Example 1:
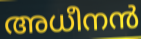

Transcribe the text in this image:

അധീനൻ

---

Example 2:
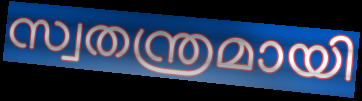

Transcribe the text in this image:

സ്വതന്ത്രമായി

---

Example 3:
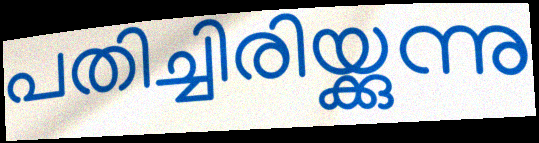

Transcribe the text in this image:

പതിച്ചിരിയ്ക്കുന്നു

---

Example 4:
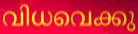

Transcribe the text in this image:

വിധവെക്കു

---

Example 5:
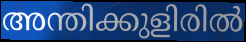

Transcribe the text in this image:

അന്തിക്കുളിരിൽ